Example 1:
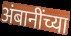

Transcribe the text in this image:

अंबानींच्या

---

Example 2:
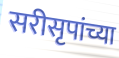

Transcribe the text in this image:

सरीसृपांच्या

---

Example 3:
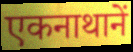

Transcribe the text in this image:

एकनाथानें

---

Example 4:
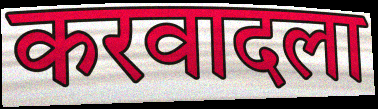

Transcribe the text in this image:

करवादला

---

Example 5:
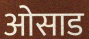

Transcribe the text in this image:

ओसाड